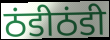
ठंडीठंडी